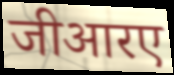
जीआरए